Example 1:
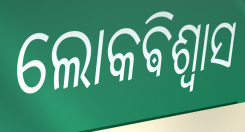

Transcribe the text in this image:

ଲୋକଵିଶ୍ଵାସ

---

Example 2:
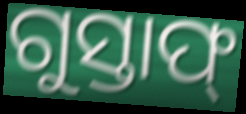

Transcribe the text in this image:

ଗୁସ୍ତାଫ୍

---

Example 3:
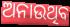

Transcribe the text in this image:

ଅନାଉଥିବ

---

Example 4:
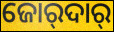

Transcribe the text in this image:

ଜୋର୍‍ଦାର୍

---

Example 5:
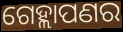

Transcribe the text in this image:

ଗେହ୍ଲାପଣର